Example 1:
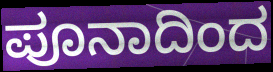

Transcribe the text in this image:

ಪೂನಾದಿಂದ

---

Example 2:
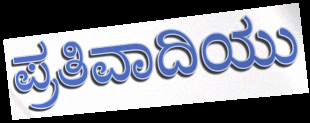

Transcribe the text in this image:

ಪ್ರತಿವಾದಿಯು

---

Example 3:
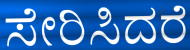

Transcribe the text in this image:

ಸೇರಿಸಿದರೆ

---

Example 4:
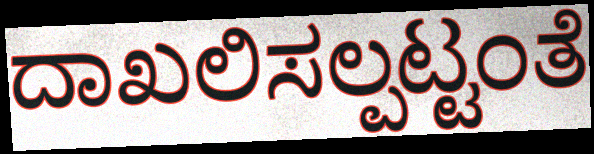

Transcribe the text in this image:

ದಾಖಲಿಸಲ್ಪಟ್ಟಂತೆ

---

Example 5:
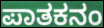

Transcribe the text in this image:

ಪಾತಕನಂ